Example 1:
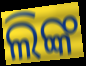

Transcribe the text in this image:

ଲିଙ୍କ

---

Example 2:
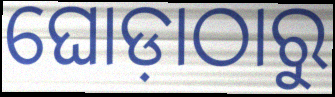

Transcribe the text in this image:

ଘୋଡ଼ାଠାରୁ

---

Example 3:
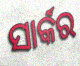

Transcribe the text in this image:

ସାର୍କର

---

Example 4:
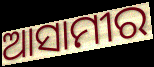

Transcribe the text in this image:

ଆସାମୀର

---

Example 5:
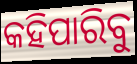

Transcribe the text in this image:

କହିପାରିବୁ